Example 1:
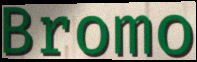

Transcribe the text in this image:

Bromo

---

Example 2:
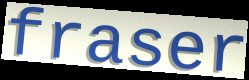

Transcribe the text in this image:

fraser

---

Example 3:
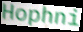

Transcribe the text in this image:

Hophni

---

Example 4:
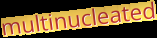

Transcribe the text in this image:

multinucleated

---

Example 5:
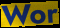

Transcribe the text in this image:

Wor